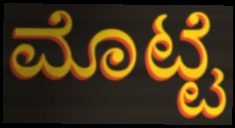
ಮೊಟ್ಟೆ